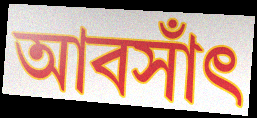
আবসাঁৎ